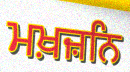
ਮਖ਼ਜ਼ਨਿ